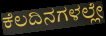
ಕೆಲದಿನಗಳಲ್ಲೇ